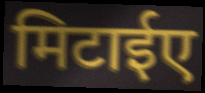
मिटाईए